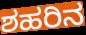
ಶಹರಿನ